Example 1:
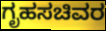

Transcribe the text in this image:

ಗೃಹಸಚಿವರ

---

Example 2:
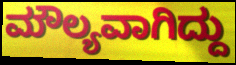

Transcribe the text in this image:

ಮೌಲ್ಯವಾಗಿದ್ದು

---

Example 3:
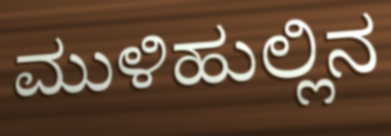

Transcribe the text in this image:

ಮುಳಿಹುಲ್ಲಿನ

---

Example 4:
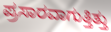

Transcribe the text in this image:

ಪ್ರಸಾರವಾಗುತ್ತಿತ್ತು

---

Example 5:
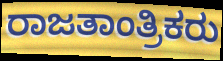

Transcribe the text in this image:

ರಾಜತಾಂತ್ರಿಕರು